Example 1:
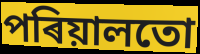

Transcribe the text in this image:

পৰিয়ালতো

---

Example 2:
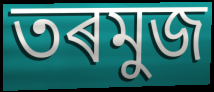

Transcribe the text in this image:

তৰমুজ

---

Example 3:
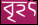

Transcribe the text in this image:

বৃহৎ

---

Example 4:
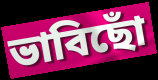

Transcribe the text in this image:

ভাবিছোঁ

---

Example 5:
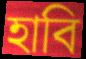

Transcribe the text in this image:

হাবি